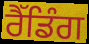
ਰੈੱਡਿੰਗ